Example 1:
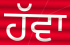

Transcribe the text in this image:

ਹੱਵਾ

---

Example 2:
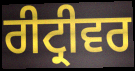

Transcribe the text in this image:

ਰੀਟ੍ਰੀਵਰ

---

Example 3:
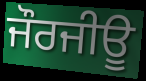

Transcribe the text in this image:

ਜੌਰਜੀਊ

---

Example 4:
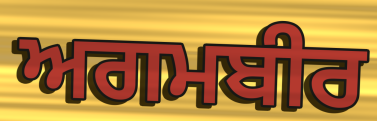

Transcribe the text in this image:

ਅਗਮਬੀਰ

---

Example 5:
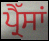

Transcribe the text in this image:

ਪ੍ਰੈੱਸਾਂ